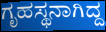
ಗೃಹಸ್ಥನಾಗಿದ್ದ